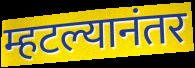
म्हटल्यानंतर